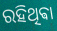
ରହିଥିଵା